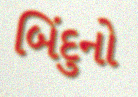
બિંદુનો